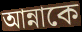
আন্নাকে